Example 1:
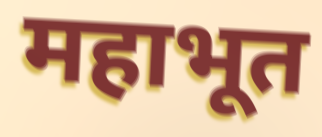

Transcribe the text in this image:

महाभूत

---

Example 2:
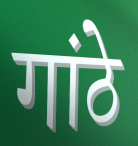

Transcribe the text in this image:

गांठे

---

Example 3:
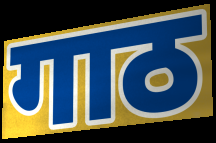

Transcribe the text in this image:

गाठ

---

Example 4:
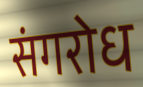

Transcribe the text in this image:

संगरोध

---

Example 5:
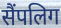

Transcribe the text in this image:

सैंपलिग